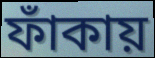
ফাঁকায়